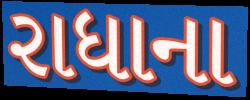
રાધાના